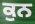
ਕੁਨ